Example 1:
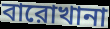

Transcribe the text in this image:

বারোখানা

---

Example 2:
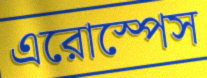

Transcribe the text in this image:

এরোস্পেস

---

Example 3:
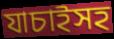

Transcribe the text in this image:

যাচাইসহ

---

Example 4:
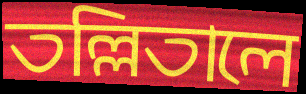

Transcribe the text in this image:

তল্লিতালে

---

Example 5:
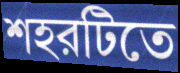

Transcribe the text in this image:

শহরটিতে